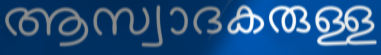
ആസ്വാദകരുള്ള